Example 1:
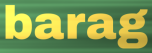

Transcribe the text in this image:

barag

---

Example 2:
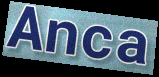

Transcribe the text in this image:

Anca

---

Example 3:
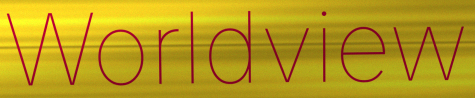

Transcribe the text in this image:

Worldview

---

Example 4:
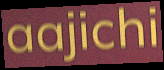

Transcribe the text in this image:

aajichi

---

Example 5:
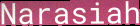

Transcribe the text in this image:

Narasiah